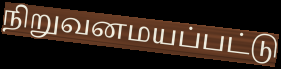
நிறுவனமயப்பட்டு